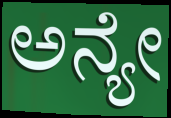
ಅನ್ಯೇ